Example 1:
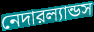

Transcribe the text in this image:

নেদারল্যান্ডস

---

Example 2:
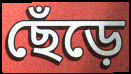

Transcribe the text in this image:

ছেঁড়ে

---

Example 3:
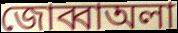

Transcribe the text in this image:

জোব্বাঅলা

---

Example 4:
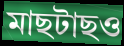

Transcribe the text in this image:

মাছটাছও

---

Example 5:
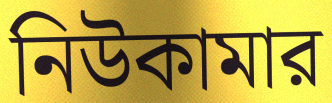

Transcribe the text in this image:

নিউকামার